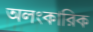
অলংকারিক